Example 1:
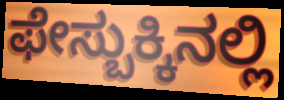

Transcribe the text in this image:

ಫೇಸ್ಬುಕ್ಕಿನಲ್ಲಿ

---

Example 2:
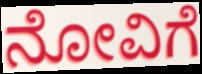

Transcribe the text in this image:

ನೋವಿಗೆ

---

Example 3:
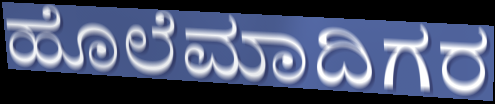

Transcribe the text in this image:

ಹೊಲೆಮಾದಿಗರ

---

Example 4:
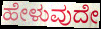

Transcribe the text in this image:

ಹೇಳುವುದೇ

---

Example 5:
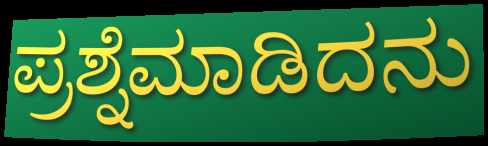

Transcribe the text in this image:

ಪ್ರಶ್ನೆಮಾಡಿದನು